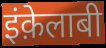
इंक़ेलाबी